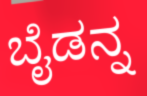
ಬೈಡನ್ನ